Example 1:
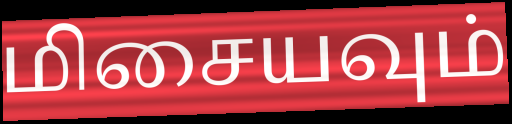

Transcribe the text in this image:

மிசையவும்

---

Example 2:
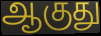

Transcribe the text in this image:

ஆகுது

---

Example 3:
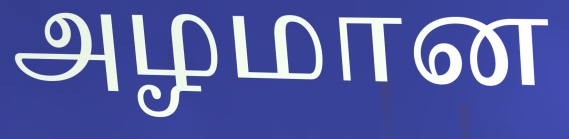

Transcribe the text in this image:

அழமான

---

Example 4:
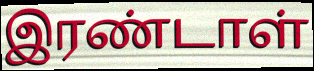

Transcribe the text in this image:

இரண்டாள்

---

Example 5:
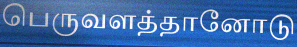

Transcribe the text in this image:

பெருவளத்தானோடு